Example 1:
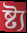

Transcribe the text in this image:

ষ্ট্য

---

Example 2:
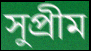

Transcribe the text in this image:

সুপ্রীম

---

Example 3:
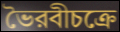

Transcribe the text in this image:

ভৈরবীচক্রে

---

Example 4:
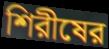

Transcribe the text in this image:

শিরীষের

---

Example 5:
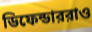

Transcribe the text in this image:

ডিফেন্ডাররাও